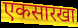
एकसारखा